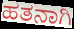
ಹತನಾಗಿ